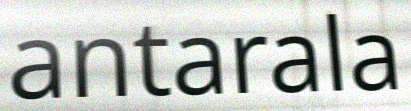
antarala